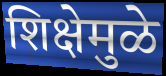
शिक्षेमुळे